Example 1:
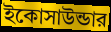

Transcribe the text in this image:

ইকোসাউন্ডার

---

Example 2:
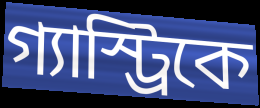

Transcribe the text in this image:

গ্যাস্ট্রিকে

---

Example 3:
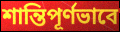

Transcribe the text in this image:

শান্তিপূর্ণভাবে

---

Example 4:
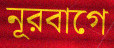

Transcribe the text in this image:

নূরবাগে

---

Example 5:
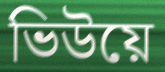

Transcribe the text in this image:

ভিউয়ে